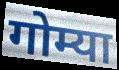
गोम्या